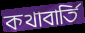
কথাবার্তি